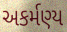
અકર્મણ્ય